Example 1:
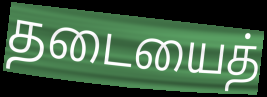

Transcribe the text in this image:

தடையைத்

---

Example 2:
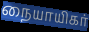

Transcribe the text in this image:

நையாயிகர்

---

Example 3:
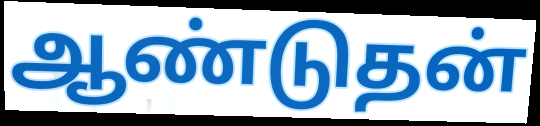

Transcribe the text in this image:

ஆண்டுதன்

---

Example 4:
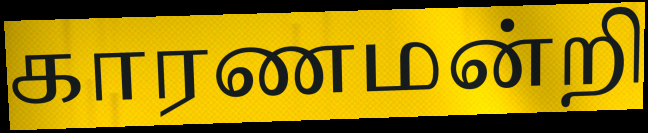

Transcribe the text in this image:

காரணமன்றி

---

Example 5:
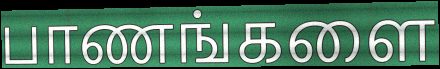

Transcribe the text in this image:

பாணங்களை